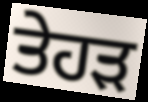
ਤੇਹੜ